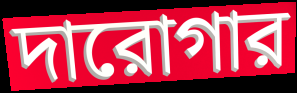
দারোগার